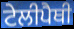
ਟੇਲੀਪੈਥੀ